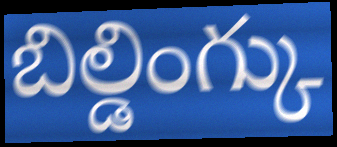
బిల్డింగ్కు